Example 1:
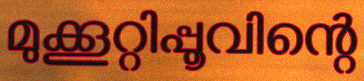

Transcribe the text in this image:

മുക്കൂറ്റിപ്പൂവിന്റെ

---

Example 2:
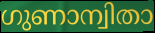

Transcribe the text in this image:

ഗുണാന്വിതാ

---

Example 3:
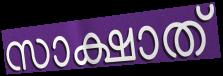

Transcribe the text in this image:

സാക്ഷാത്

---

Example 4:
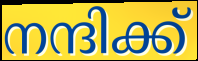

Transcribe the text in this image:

നന്ദിക്ക്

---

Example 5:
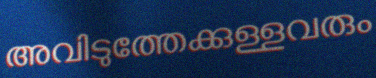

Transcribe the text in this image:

അവിടുത്തേക്കുള്ളവരും